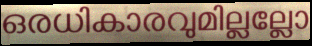
ഒരധികാരവുമില്ലല്ലോ